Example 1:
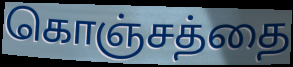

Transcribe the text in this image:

கொஞ்சத்தை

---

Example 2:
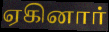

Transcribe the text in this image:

ஏகினார்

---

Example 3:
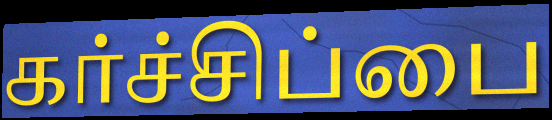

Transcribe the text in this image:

கர்ச்சிப்பை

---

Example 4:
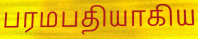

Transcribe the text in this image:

பரமபதியாகிய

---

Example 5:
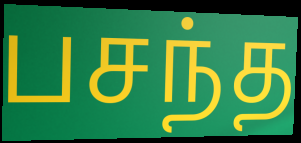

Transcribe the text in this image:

பசந்த